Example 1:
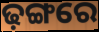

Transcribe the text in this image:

ଢ଼ଙ୍ଗରେ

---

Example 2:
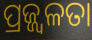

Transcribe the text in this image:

ପ୍ରଜ୍ଜ୍ୱଳତା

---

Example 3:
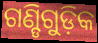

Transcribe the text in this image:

ଗଣ୍ଡିଗୁଡ଼ିକ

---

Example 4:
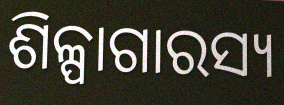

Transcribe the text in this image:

ଶିଳ୍ପାଗାରସ୍ୟ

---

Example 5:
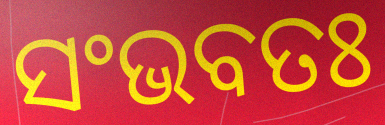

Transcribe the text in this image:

ସଂଭବତଃ